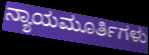
ನ್ಯಾಯಮೂರ್ತಿಗಳು